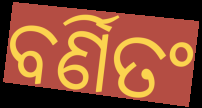
ବର୍ଣିତଂ